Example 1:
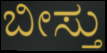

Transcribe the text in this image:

ಬೀಸ್ತು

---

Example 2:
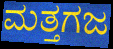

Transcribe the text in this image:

ಮತ್ತಗಜ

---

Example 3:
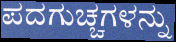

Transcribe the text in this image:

ಪದಗುಚ್ಚಗಳನ್ನು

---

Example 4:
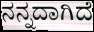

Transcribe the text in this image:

ನನ್ನದಾಗಿದೆ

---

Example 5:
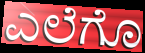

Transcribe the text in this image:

ಎಲೆಗೊ